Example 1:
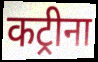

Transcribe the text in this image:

कट्रीना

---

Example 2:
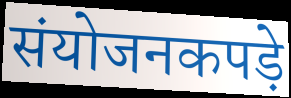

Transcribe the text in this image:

संयोजनकपड़े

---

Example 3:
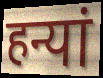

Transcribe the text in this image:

हन्यां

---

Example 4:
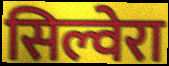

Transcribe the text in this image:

सिल्वेरा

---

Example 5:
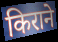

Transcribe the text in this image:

किराने